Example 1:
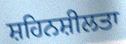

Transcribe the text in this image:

ਸ਼ਹਿਨਸ਼ੀਲਤਾ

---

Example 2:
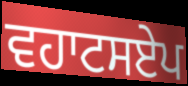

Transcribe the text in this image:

ਵਹਾਟਸਏਪ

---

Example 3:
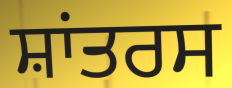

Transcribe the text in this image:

ਸ਼ਾਂਤਰਸ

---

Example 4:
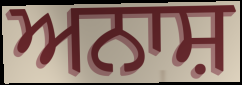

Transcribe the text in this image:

ਅਨਾਸ਼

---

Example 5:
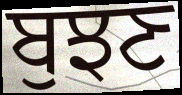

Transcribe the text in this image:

ਬੁਝਣ